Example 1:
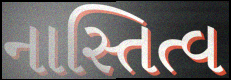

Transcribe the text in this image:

નાસ્તિત્વ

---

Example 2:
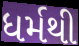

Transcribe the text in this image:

ધર્મથી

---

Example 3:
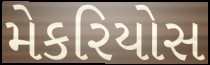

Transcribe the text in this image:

મેકરિયોસ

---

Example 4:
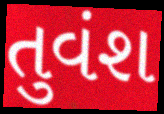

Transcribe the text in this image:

તુવંશ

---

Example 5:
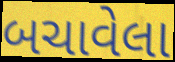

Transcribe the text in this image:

બચાવેલા